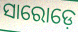
ସାରୋଡ଼େ